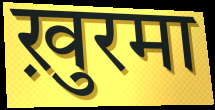
ख़ुरमा